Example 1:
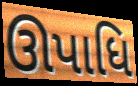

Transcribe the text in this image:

ઊપાધિ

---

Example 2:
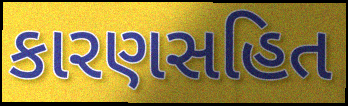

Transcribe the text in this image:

કારણસહિત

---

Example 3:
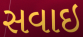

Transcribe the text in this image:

સવાઇ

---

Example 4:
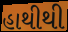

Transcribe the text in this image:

હાથીથી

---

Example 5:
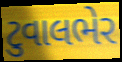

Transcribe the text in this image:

ટુવાલભેર